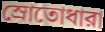
স্রোতোধারা